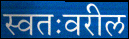
स्वतःवरील